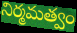
నిర్మమత్వం